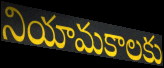
నియామకాలకు